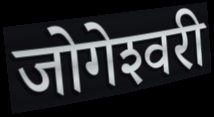
जोगेश्‍वरी